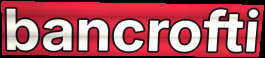
bancrofti